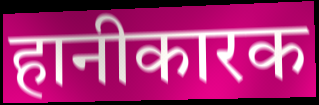
हानीकारक